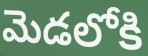
మెడలోకి